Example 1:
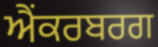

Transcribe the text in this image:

ਐਂਕਰਬਰਗ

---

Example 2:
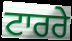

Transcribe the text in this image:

ਟਾਰਰੇ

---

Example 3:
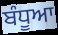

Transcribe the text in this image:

ਬੰਧੂਆ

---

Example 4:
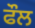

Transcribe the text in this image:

ਫੌਲ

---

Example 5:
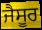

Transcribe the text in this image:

ਜੈਸੂਰ